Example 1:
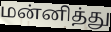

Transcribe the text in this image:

மன்னித்து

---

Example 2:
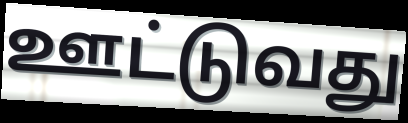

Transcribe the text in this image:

ஊட்டுவது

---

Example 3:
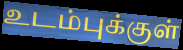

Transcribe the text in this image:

உடம்புக்குள்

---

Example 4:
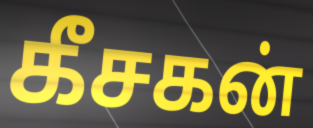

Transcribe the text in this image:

கீசகன்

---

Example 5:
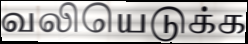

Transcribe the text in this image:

வலியெடுக்க